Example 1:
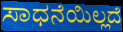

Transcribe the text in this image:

ಸಾಧನೆಯಿಲ್ಲದೆ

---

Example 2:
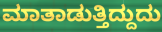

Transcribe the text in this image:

ಮಾತಾಡುತ್ತಿದ್ದುದು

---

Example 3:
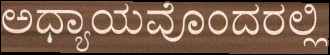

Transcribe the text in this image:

ಅಧ್ಯಾಯವೊಂದರಲ್ಲಿ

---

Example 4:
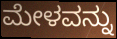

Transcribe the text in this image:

ಮೇಳವನ್ನು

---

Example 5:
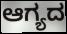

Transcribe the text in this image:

ಆಗ್ಯದ